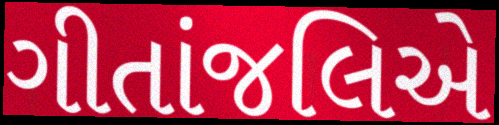
ગીતાંજલિએ